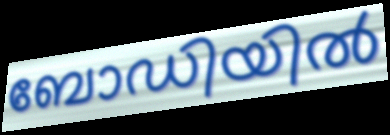
ബോഡിയിൽ